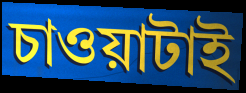
চাওয়াটাই